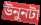
উনুনটা